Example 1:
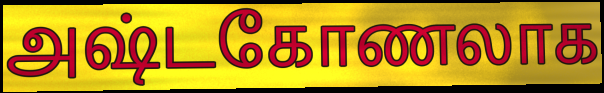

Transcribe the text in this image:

அஷ்டகோணலாக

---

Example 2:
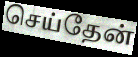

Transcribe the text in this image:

செய்தேன்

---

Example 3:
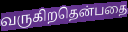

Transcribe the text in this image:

வருகிறதென்பதை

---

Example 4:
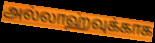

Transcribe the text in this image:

அல்லாஹ்வுக்காக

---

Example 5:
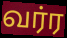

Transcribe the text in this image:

வர்ர